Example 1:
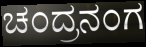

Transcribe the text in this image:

ಚಂದ್ರನಂಗ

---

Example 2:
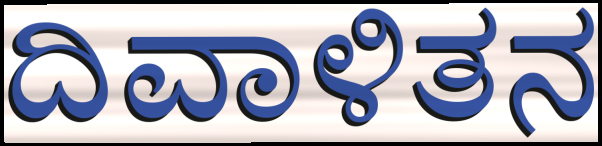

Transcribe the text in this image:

ದಿವಾಳಿತನ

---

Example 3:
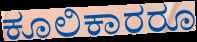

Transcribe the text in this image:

ಕೂಲಿಕಾರರೂ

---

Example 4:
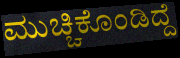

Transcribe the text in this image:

ಮುಚ್ಚಿಕೊಂಡಿದ್ದೆ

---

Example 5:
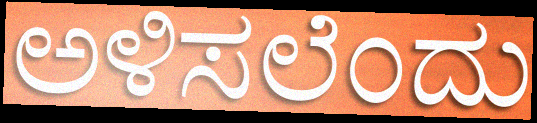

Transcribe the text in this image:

ಅಳಿಸಲೆಂದು